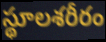
స్థూలశరీరం